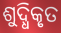
ଶୁଦ୍ଧିକୃତ